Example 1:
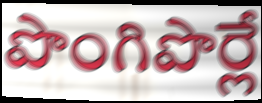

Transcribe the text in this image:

పొంగిపొర్లే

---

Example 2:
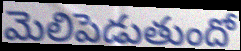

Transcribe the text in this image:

మెలిపెడుతుందో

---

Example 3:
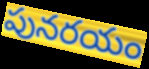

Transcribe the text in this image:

పునరయం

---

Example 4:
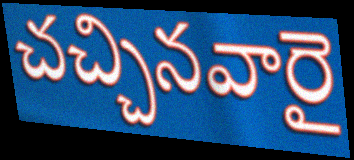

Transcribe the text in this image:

చచ్చినవారై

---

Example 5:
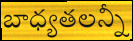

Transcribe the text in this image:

బాధ్యతలన్నీ